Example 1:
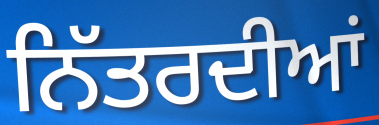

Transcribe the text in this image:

ਨਿੱਤਰਦੀਆਂ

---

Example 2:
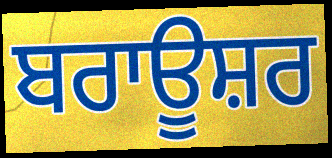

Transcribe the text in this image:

ਬਰਾਊਸ਼ਰ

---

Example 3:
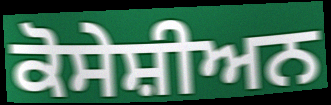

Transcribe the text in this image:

ਕੋਸੇਸ਼ੀਅਨ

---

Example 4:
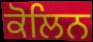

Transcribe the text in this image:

ਕੋਲਿਨ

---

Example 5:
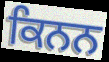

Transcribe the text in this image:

ਕਿਨਨ